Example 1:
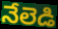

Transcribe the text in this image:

నేలెడి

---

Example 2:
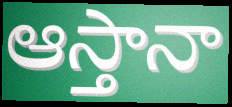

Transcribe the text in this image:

ఆస్తానా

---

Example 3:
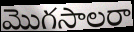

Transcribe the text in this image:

మొగసాలరా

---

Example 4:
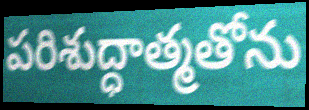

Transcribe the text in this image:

పరిశుద్ధాత్మతోను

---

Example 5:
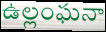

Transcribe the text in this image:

ఉల్లంఘనా